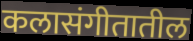
कलासंगीतातील